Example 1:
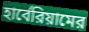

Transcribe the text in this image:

হার্বেরিয়ামের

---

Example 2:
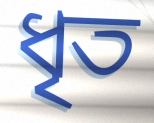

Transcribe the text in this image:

ধৃত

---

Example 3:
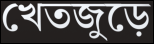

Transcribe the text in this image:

খেতজুড়ে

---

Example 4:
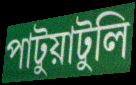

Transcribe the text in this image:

পাটুয়াটুলি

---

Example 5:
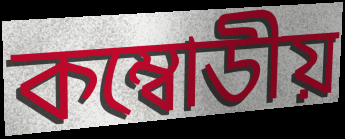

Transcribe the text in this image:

কম্বোডীয়